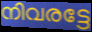
നിവരട്ടേ